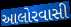
આલોરવાસી